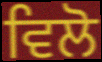
ਵਿਲੋ